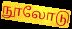
நூலோடு